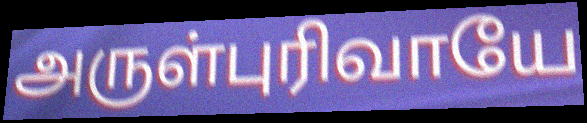
அருள்புரிவாயே